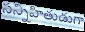
సన్నిహితుడుగా